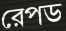
রেপড